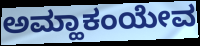
ಅಮ್ಹಾಕಂಯೇವ